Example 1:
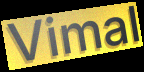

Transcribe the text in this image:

Vimal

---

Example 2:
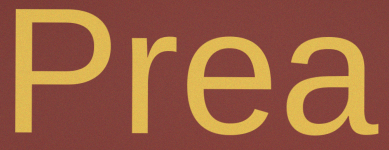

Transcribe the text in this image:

Prea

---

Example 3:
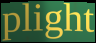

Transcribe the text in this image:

plight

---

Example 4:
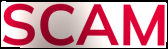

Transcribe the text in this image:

SCAM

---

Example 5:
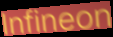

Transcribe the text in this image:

Infineon